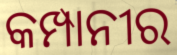
କମ୍ପାନୀର